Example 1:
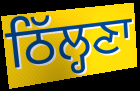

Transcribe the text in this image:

ਠਿੱਲ੍ਹਣਾ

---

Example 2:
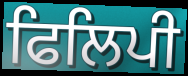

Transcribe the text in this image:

ਫਿਲਿਪੀ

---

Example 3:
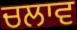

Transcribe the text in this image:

ਚਲਾਵ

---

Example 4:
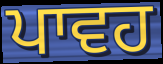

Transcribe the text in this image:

ਪਾਵਹ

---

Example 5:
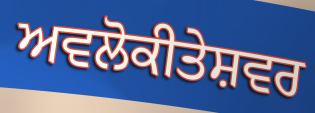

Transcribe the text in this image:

ਅਵਲੋਕੀਤੇਸ਼ਵਰ